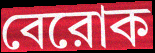
বেরোক